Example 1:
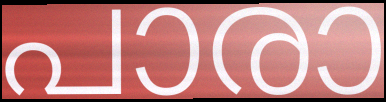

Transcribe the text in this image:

പാരാ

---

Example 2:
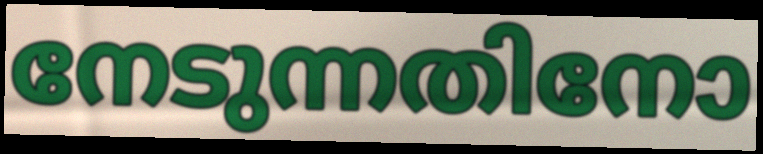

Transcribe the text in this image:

നേടുന്നതിനോ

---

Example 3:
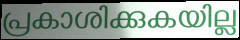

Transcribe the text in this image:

പ്രകാശിക്കുകയില്ല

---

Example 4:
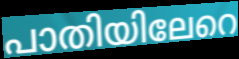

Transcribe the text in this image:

പാതിയിലേറെ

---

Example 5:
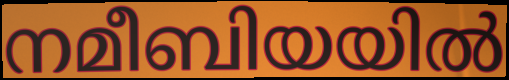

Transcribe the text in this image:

നമീബിയയിൽ